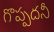
గొప్పదనీ